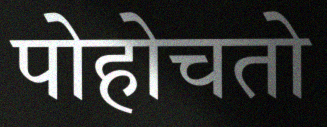
पोहोचतो